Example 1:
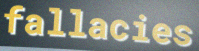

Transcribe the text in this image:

fallacies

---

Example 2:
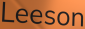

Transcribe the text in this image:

Leeson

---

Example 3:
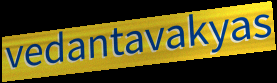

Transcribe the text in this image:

vedantavakyas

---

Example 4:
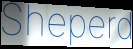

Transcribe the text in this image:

Sheperd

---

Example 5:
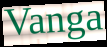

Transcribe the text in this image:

Vanga